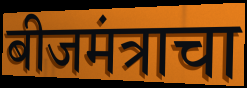
बीजमंत्राचा